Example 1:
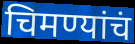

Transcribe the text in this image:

चिमण्यांचं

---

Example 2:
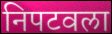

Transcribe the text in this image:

निपटवला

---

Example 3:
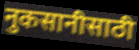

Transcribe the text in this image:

नुकसानीसाठी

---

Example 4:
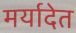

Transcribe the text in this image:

मर्यादेत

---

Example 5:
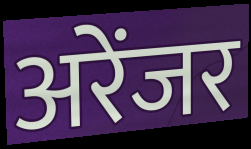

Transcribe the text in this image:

अरेंजर